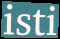
isti